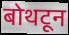
बोथटून